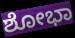
ಶೋಭಾ